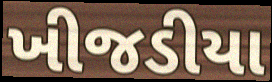
ખીજડીયા